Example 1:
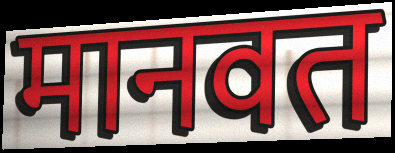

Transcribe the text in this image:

मानवत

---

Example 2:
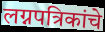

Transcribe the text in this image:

लग्नपत्रिकांचे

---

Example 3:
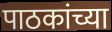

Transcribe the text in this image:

पाठकांच्या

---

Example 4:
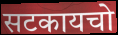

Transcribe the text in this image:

सटकायचो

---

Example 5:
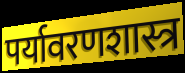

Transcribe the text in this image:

पर्यावरणशास्त्र